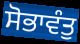
ਸੋਭਾਵੰਤੁ